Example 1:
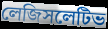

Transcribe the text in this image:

লেজিসলেটিভ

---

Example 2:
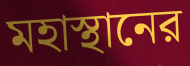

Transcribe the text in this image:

মহাস্থানের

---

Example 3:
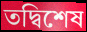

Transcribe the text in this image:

তদ্বিশেষ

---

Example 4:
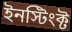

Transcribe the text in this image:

ইনস্টিংক্ট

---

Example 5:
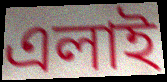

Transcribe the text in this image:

এলাই